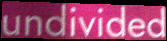
undivided